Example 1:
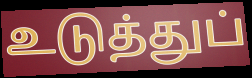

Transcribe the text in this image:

உடுத்துப்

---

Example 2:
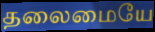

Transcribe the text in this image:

தலைமையே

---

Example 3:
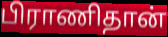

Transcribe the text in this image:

பிராணிதான்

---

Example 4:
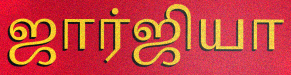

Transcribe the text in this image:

ஜார்ஜியா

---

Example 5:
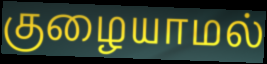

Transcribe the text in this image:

குழையாமல்